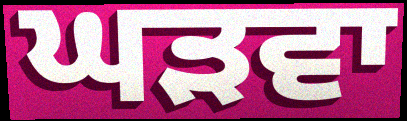
ਘੜਵਾ